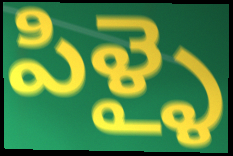
పిళ్ళై